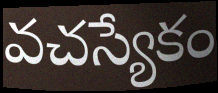
వచస్యేకం